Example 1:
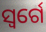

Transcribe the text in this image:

ସ୍ୱର୍ଗେ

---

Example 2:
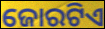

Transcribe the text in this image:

ଜୋରଟିଏ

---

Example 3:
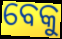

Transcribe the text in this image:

ବେକୁ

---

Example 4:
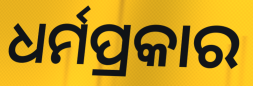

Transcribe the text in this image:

ଧର୍ମପ୍ରକାର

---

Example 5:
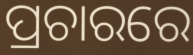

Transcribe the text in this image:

ପ୍ରଚାରରେ